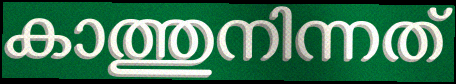
കാത്തുനിന്നത്